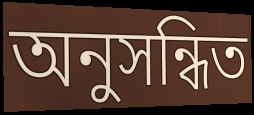
অনুসন্ধিত